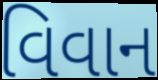
વિવાન